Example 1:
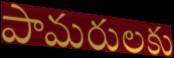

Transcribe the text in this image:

పామరులకు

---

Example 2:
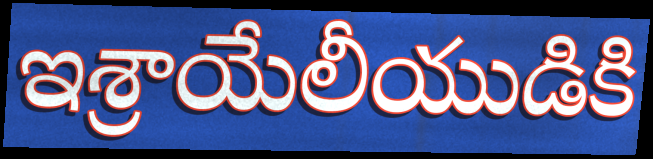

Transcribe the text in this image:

ఇశ్రాయేలీయుడికి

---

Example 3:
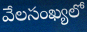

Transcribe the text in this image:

వేలసంఖ్యలో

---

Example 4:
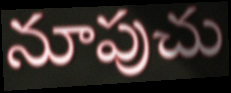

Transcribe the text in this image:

నూపుచు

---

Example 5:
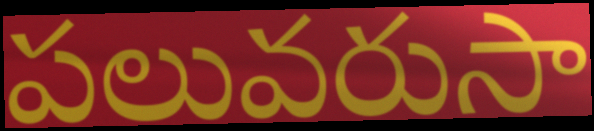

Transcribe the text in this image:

పలువరుసా